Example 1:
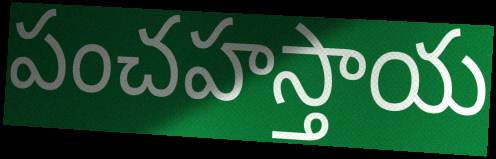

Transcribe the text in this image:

పంచహస్తాయ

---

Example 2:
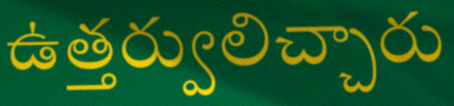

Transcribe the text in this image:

ఉత్తర్వులిచ్చారు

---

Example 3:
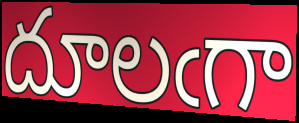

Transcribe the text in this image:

దూలఁగా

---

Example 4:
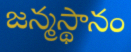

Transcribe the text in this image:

జన్మస్థానం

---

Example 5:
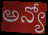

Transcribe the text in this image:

అన్యో